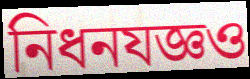
নিধনযজ্ঞও